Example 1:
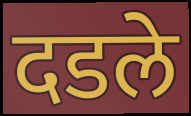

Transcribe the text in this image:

दडले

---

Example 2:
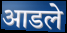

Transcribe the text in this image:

आडले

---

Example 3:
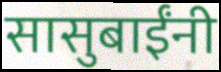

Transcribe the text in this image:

सासुबाईंनी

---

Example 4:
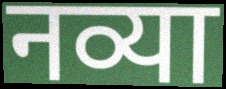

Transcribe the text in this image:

नव्या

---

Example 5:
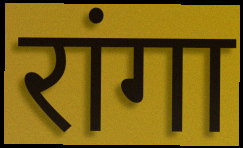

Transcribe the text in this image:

रांगा